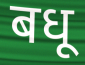
बधू